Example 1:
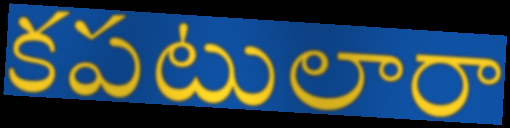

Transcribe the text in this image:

కపటులారా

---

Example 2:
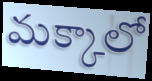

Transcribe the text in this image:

మక్కాలో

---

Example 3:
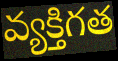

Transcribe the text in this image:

వ్యక్తిగత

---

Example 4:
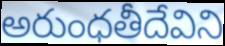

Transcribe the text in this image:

అరుంధతీదేవిని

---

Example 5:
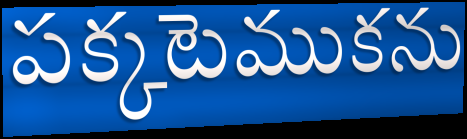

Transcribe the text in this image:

పక్కటెముకను